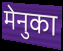
मेनुका